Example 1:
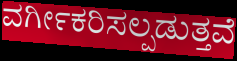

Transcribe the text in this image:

ವರ್ಗೀಕರಿಸಲ್ಪಡುತ್ತವೆ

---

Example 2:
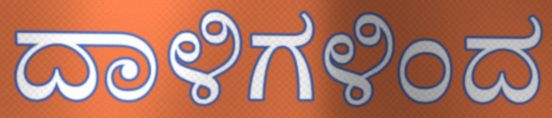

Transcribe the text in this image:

ದಾಳಿಗಳಿಂದ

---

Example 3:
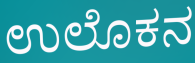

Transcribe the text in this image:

ಉಲೊಕನ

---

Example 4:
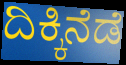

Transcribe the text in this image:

ದಿಕ್ಕಿನೆಡೆ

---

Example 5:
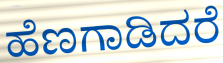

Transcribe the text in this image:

ಹೆಣಗಾಡಿದರೆ